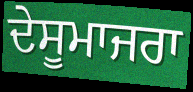
ਦੇਸੂਮਾਜਰਾ